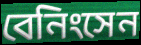
বেনিংসেন